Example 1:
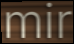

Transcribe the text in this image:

mir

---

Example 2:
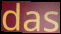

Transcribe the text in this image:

das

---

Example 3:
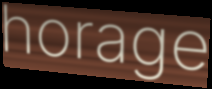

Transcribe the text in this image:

horage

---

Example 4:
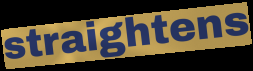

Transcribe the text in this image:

straightens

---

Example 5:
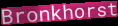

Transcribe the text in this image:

Bronkhorst